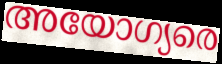
അയോഗ്യരെ